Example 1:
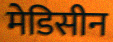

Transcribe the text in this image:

मेडिसीन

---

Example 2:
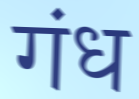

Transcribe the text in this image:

गंध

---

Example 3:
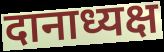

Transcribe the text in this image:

दानाध्यक्ष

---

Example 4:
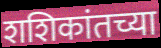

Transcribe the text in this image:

शशिकांतच्या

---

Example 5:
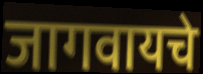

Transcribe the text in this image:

जागवायचे